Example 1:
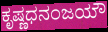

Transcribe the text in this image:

ಕೃಷ್ಣಧನಂಜಯೌ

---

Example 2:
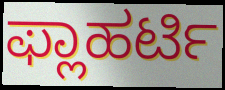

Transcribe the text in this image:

ಫ್ಲಾಹರ್ಟಿ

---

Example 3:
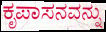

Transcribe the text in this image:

ಕೃಪಾಸನವನ್ನು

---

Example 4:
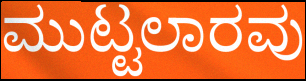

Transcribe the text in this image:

ಮುಟ್ಟಲಾರವು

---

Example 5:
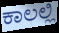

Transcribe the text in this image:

ಕಾಲಲ್ಲಿ